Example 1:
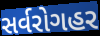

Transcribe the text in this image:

સર્વરોગહર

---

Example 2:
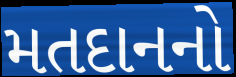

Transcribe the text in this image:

મતદાનનો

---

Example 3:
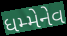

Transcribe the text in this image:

ધમ્મેનેવ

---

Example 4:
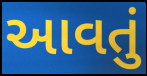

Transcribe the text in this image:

આવતું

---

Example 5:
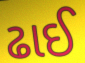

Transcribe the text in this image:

ઢાઈ